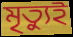
মৃত্যুই